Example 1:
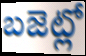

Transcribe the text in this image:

బజెట్లో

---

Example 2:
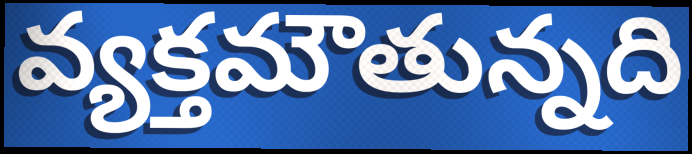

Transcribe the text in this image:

వ్యక్తమౌతున్నది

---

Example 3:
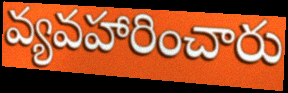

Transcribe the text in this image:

వ్యవహారించారు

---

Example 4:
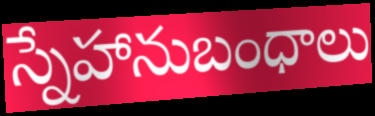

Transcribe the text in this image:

స్నేహానుబంధాలు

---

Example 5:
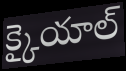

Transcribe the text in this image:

క్కైయాల్